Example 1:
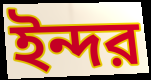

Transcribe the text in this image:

ইন্দর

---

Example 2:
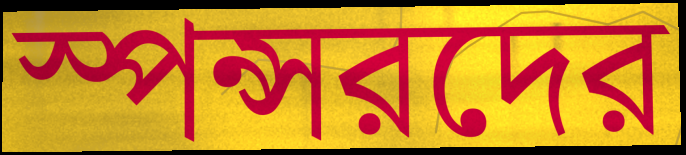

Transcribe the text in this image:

স্পন্সরদের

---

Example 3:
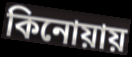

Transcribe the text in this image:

কিনোয়ায়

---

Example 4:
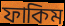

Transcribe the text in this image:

ফাকিম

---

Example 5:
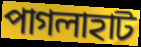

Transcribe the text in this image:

পাগলাহাট